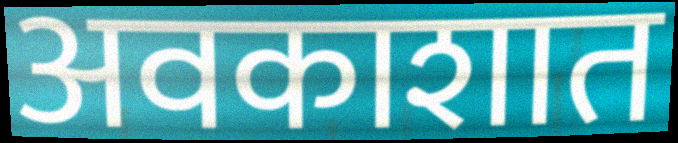
अवकाशात